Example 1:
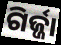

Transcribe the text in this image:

ଗିର୍ଜ୍ଜା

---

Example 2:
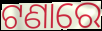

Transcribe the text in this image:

ଟଣାରେ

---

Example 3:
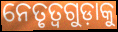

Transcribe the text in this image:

ନେତୃତ୍ୱଗୁଡ଼ାକୁ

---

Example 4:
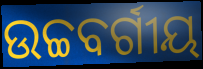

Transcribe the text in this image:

ଉଚ୍ଚବର୍ଗୀୟ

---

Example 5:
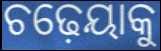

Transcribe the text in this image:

ଚଢ଼େୟାକୁ